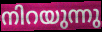
നിറയുന്നു